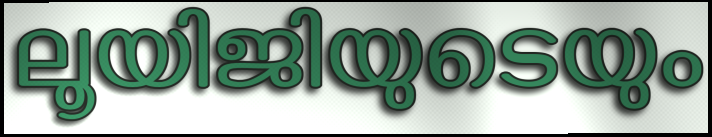
ലൂയിജിയുടെയും